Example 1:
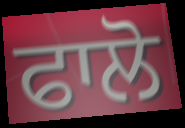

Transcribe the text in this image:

ਫਾਲੋ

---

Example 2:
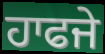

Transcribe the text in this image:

ਹਾਫਜੇ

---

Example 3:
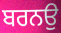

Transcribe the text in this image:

ਬਰਨਉ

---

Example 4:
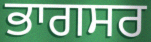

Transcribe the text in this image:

ਭਾਗਸਰ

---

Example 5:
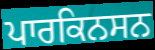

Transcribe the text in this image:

ਪਾਰਕਿਨਸਨ